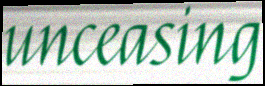
unceasing